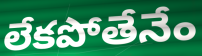
లేకపోతేనేం